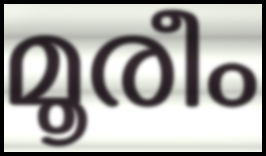
മൂരീം